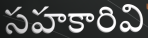
సహకారివి